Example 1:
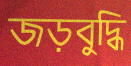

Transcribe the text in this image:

জড়বুদ্ধি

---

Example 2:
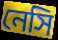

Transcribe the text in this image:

নেসি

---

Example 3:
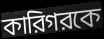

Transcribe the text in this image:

কারিগরকে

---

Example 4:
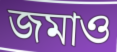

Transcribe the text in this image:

জমাও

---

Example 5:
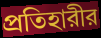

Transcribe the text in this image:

প্রতিহারীর